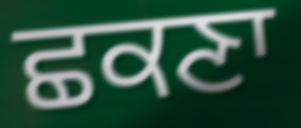
ਛਕਣਾ